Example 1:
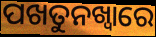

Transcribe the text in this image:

ପଖତୁନଖ୍ୱାରେ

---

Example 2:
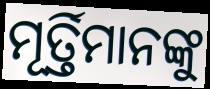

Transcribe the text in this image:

ମୂର୍ତ୍ତିମାନଙ୍କୁ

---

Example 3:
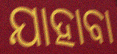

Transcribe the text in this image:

ଯାହାବା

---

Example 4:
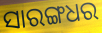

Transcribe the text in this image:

ସାରଙ୍ଗଧର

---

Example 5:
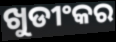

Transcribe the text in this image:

ଖୁଡୀଂକର